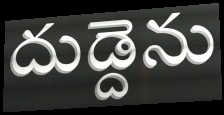
దుడ్దెను